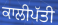
ਕਾਲੀਪੱਤੀ